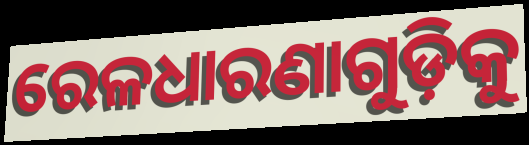
ରେଳଧାରଣାଗୁଡ଼ିକୁ